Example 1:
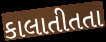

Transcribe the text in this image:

કાલાતીતતા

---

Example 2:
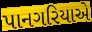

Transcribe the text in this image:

પાનગરિયાએ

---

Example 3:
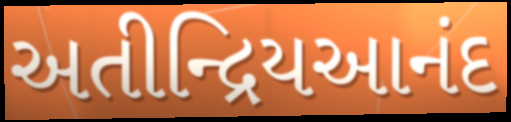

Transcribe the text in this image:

અતીન્દ્રિયઆનંદ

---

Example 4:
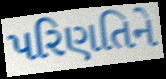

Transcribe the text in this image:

પરિણતિને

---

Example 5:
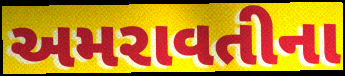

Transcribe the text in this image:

અમરાવતીના